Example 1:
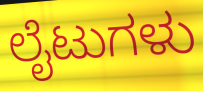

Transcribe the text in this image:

ಲೈಟುಗಳು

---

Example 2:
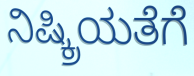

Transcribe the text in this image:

ನಿಷ್ಕ್ರಿಯತೆಗೆ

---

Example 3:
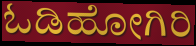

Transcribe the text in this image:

ಓಡಿಹೋಗಿರಿ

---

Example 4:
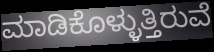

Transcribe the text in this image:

ಮಾಡಿಕೊಳ್ಳುತ್ತಿರುವೆ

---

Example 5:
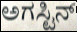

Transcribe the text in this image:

ಅಗಸ್ಟಿನ್